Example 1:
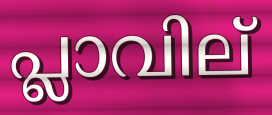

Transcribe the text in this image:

പ്ലാവില്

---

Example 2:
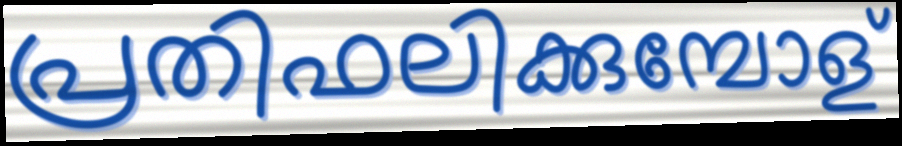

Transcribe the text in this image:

പ്രതിഫലിക്കുമ്പോള്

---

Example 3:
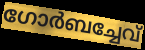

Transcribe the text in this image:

ഗോർബച്ചേവ്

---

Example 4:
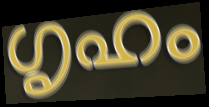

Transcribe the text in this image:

ഗൃഹം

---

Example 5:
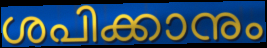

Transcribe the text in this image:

ശപിക്കാനും